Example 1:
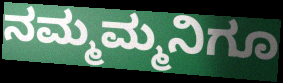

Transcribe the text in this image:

ನಮ್ಮಮ್ಮನಿಗೂ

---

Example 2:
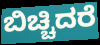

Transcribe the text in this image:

ಬಿಚ್ಚಿದರೆ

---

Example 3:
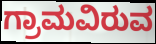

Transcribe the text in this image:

ಗ್ರಾಮವಿರುವ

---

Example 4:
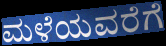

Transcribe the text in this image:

ಮಳೆಯವರೆಗೆ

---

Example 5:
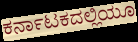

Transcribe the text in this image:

ಕರ್ನಾಟಕದಲ್ಲಿಯೂ